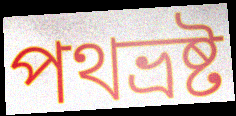
পথভ্রষ্ট